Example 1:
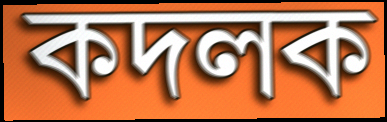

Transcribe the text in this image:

কদলক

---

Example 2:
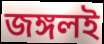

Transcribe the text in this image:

জঙ্গলই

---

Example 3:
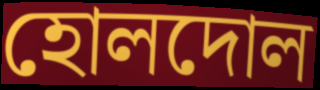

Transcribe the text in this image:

হোলদোল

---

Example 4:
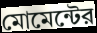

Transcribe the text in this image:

মোমেন্টের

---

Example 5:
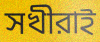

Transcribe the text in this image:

সখীরাই